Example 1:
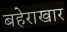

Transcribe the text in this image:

बहेराखार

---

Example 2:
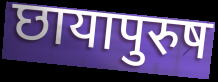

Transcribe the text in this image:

छायापुरुष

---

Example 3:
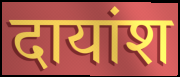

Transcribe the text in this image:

दायांश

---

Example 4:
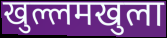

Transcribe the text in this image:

खुल्लमखुला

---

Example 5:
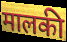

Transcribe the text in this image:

मालकी